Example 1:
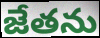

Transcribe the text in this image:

జేతను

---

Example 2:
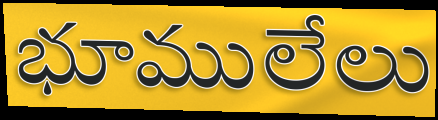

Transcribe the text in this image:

భూములేలు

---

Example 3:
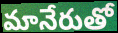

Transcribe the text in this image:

మానేరుతో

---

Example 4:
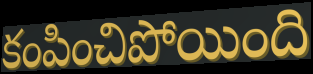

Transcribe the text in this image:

కంపించిపోయింది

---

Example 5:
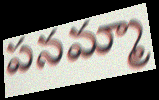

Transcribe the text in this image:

పనమ్మా